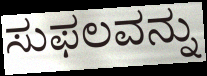
ಸುಫಲವನ್ನು